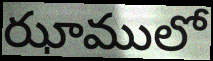
ఝాములో